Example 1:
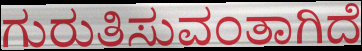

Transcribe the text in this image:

ಗುರುತಿಸುವಂತಾಗಿದೆ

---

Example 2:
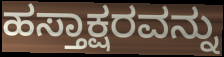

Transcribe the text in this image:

ಹಸ್ತಾಕ್ಷರವನ್ನು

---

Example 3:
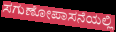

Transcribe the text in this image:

ಸಗುಣೋಪಾಸನೆಯಲ್ಲಿ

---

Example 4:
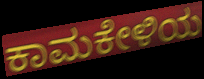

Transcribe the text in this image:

ಕಾಮಕೇಳಿಯ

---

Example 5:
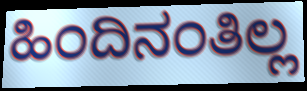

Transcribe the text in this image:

ಹಿಂದಿನಂತಿಲ್ಲ